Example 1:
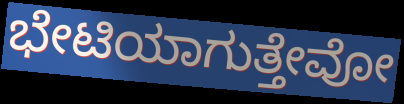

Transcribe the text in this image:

ಭೇಟಿಯಾಗುತ್ತೇವೋ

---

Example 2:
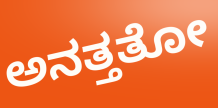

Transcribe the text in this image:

ಅನತ್ತತೋ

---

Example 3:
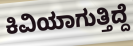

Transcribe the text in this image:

ಕಿವಿಯಾಗುತ್ತಿದ್ದೆ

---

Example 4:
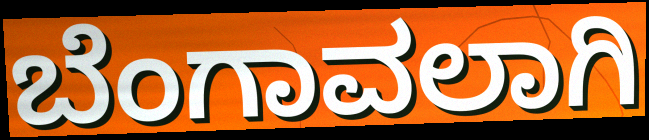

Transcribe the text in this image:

ಬೆಂಗಾವಲಾಗಿ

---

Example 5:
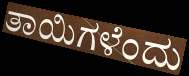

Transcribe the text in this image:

ತಾಯಿಗಳೆಂದು